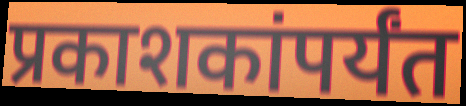
प्रकाशकांपर्यंत